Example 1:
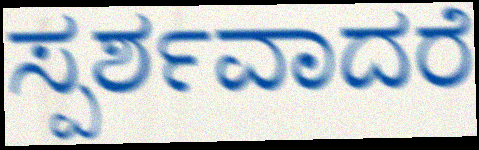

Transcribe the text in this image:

ಸ್ಪರ್ಶವಾದರೆ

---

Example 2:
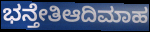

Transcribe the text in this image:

ಭನ್ತೇತಿಆದಿಮಾಹ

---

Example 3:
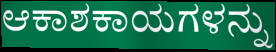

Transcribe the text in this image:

ಆಕಾಶಕಾಯಗಳನ್ನು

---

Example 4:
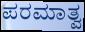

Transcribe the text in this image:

ಪರಮಾತ್ವ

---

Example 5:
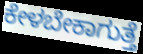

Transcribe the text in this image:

ಕೇಳಬೇಕಾಗುತ್ತೆ